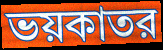
ভয়কাতর